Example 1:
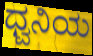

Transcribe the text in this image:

ಧ್ವನಿಯ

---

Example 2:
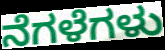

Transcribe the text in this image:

ನೆಗಳೆಗಳು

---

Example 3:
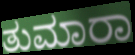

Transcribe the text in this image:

ತುಮಾರಾ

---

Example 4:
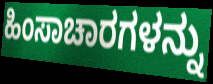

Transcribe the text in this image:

ಹಿಂಸಾಚಾರಗಳನ್ನು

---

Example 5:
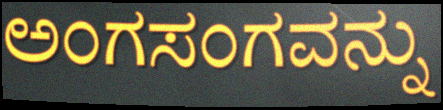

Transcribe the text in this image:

ಅಂಗಸಂಗವನ್ನು